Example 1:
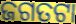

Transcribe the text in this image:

ଜଗତଟା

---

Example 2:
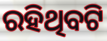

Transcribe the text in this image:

ରହିଥିବଟି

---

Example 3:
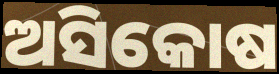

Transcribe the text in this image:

ଅସିକୋଷ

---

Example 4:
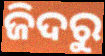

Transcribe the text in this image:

ଜିଦରୁ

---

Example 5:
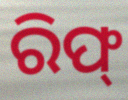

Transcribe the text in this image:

ରିଫ୍